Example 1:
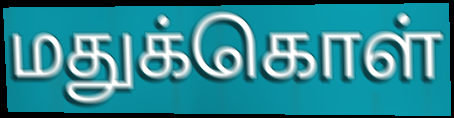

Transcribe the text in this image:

மதுக்கொள்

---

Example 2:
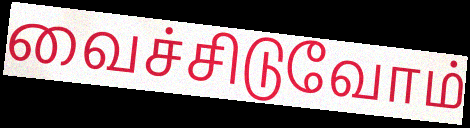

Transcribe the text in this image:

வைச்சிடுவோம்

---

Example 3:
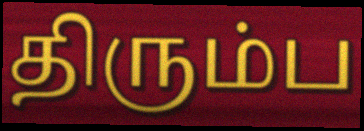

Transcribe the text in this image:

திரும்ப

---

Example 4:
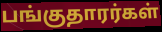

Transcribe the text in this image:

பங்குதாரர்கள்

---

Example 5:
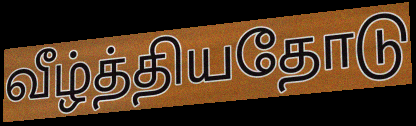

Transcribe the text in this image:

வீழ்த்தியதோடு